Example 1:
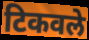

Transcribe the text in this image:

टिकवले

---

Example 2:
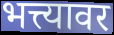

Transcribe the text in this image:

भत्त्यावर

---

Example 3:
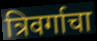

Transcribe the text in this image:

त्रिवर्गाचा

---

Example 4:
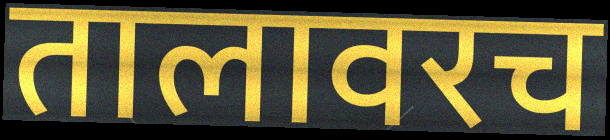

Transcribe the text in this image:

तालावरच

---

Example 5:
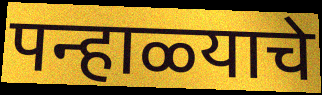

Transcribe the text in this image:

पन्हाळ्याचे